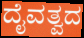
ದೈವತ್ವದ